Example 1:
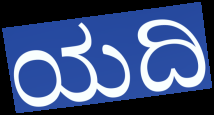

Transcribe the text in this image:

ಯದಿ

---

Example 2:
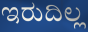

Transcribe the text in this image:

ಇರುದಿಲ್ಲ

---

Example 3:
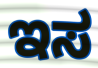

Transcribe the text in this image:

ಇಸ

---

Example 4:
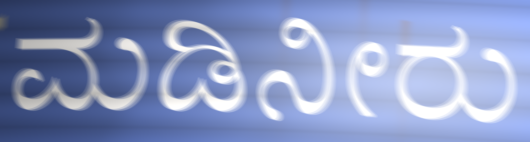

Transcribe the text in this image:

ಮಡಿನೀರು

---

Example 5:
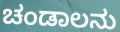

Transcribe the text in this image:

ಚಂಡಾಲನು